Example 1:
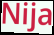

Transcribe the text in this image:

Nija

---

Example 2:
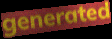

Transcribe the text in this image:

generated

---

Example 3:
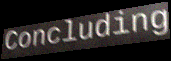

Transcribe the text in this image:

Concluding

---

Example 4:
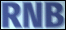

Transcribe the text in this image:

RNB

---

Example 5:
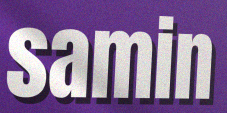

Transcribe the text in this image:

samin